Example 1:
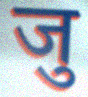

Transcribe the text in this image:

जु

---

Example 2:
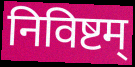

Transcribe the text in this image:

निविष्टम्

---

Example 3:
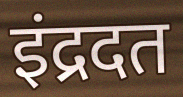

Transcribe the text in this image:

इंद्रदत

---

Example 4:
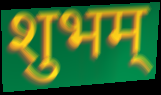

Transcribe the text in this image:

शुभम्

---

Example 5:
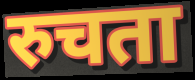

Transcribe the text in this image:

रुचता